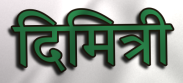
दिमित्री